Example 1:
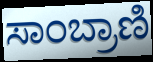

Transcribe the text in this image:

ಸಾಂಬ್ರಾಣಿ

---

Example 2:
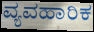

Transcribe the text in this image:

ವ್ಯವಹಾರಿಕ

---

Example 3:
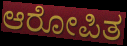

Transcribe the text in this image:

ಆರೋಪಿತ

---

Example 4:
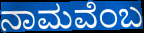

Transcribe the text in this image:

ನಾಮವೆಂಬ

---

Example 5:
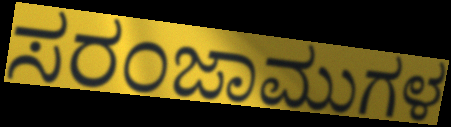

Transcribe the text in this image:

ಸರಂಜಾಮುಗಳ